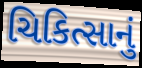
ચિકિત્સાનું